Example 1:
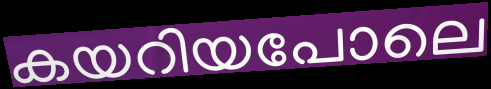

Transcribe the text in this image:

കയറിയപോലെ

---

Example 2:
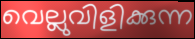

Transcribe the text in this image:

വെല്ലുവിളിക്കുന്ന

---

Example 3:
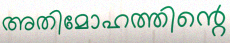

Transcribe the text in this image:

അതിമോഹത്തിന്റെ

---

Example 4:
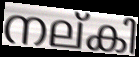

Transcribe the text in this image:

നല്‌കി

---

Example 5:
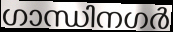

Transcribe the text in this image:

ഗാന്ധിനഗർ